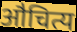
औचित्य